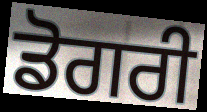
ਡੋਗਰੀ